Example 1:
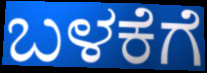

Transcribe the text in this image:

ಬಳಕೆಗೆ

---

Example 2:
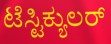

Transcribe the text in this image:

ಟೆಸ್ಟಿಕ್ಯುಲರ್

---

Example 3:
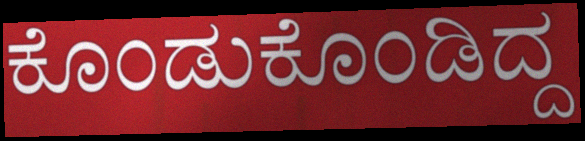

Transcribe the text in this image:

ಕೊಂಡುಕೊಂಡಿದ್ದ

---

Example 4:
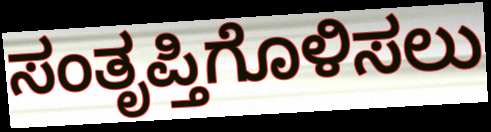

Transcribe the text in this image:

ಸಂತೃಪ್ತಿಗೊಳಿಸಲು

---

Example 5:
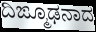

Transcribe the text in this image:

ದಿಙ್ಮೂಢನಾದ